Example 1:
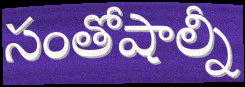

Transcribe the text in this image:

సంతోషాల్నీ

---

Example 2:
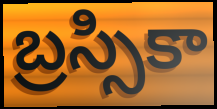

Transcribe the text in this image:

బ్రస్సికా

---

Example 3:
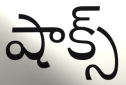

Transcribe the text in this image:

షాక్స్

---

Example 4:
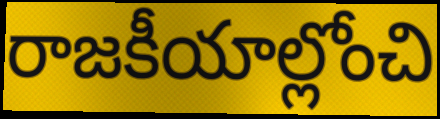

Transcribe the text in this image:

రాజకీయాల్లోంచి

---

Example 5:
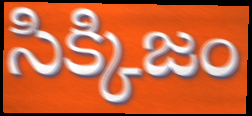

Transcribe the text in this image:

సిక్కిజం